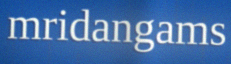
mridangams